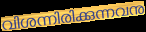
വിശന്നിരിക്കുന്നവനു